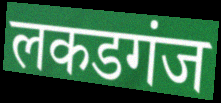
लकडगंज